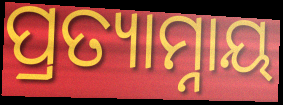
ପ୍ରତ୍ୟାମ୍ନାୟ